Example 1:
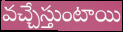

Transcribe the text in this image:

వచ్చేస్తుంటాయి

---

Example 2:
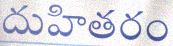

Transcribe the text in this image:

దుహితరం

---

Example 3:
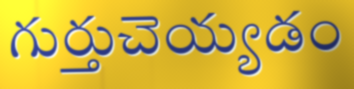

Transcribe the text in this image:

గుర్తుచెయ్యడం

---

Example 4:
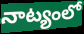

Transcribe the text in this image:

నాట్యంలో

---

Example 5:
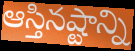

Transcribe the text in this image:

ఆస్తినష్టాన్ని